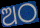
ଅଠ